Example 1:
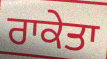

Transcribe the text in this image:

ਰਾਕੇਤਾ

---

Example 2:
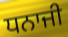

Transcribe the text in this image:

ਧਨਾਜੀ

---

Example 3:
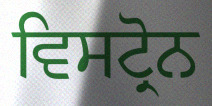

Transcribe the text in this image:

ਵਿਸਟ੍ਰੋਨ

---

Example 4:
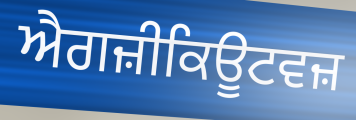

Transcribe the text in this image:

ਐਗਜ਼ੀਕਿਊਟਵਜ਼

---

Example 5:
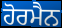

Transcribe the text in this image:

ਹੋਰਮੈਨ